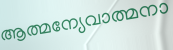
ആത്മന്യേവാത്മനാ